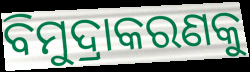
ବିମୁଦ୍ରାକରଣକୁ